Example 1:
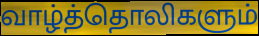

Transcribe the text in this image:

வாழ்த்தொலிகளும்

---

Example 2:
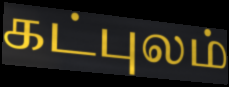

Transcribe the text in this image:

கட்புலம்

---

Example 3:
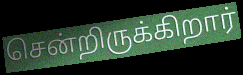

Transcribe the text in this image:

சென்றிருக்கிறார்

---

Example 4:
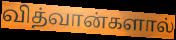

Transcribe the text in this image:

வித்வான்களால்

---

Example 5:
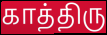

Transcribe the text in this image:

காத்திரு